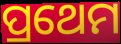
ପ୍ରଥେମ